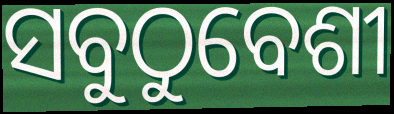
ସବୁଠୁବେଶୀ